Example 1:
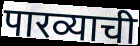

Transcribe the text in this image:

पारव्याची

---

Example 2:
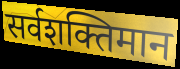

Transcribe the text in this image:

सर्वशक्तिमान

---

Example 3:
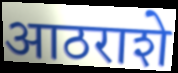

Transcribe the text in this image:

आठराशे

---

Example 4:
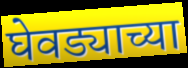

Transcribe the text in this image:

घेवड्याच्या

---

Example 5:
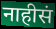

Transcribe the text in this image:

नाहीसं